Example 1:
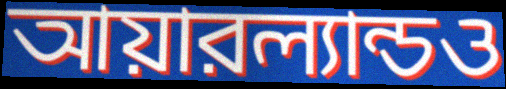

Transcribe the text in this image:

আয়ারল্যান্ডও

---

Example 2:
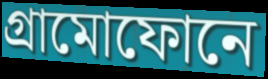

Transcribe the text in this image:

গ্রামোফোনে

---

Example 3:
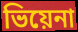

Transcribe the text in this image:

ভিয়েনা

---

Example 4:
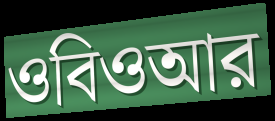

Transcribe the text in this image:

ওবিওআর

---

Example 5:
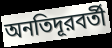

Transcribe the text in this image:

অনতিদূরবর্তী